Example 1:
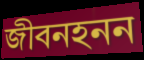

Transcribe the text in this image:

জীবনহনন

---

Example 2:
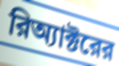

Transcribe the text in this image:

রিঅ্যাক্টরের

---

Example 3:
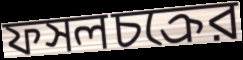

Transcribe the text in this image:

ফসলচক্রের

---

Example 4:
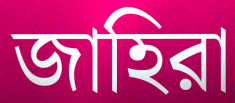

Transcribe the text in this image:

জাহিরা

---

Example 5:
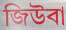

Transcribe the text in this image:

জিউবা